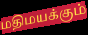
மதிமயக்கும்